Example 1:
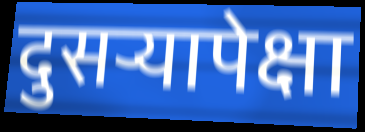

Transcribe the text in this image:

दुसऱ्यापेक्षा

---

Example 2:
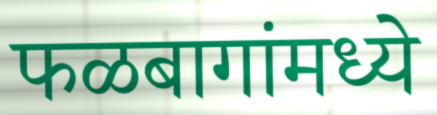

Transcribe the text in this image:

फळबागांमध्ये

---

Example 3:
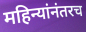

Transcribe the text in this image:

महिन्यांनंतरच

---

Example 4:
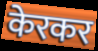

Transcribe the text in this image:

केरकर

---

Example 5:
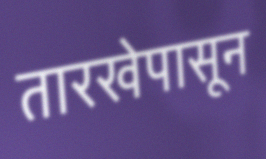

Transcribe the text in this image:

तारखेपासून